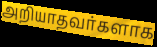
அறியாதவர்களாக